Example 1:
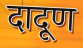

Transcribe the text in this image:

दादूण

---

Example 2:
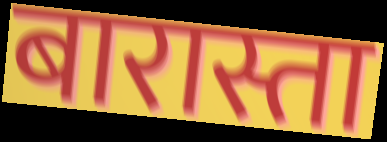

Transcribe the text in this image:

बारास्ता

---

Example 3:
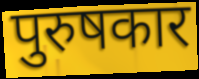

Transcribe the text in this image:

पुरुषकार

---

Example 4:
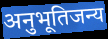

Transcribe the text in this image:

अनुभूतिजन्य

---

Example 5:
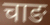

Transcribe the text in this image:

चाङ